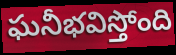
ఘనీభవిస్తోంది